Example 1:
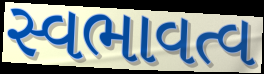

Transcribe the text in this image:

સ્વભાવત્વ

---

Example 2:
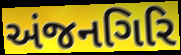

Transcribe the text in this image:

અંજનગિરિ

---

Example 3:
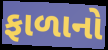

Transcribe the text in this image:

ફાળાનો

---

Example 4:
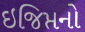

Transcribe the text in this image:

ઇજિપ્તનો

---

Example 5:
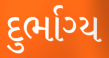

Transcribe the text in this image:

દુર્ભાગ્ય